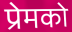
प्रेमको